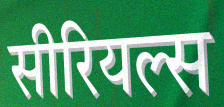
सीरियल्स